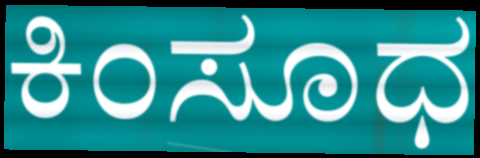
ಕಿಂಸೂಧ